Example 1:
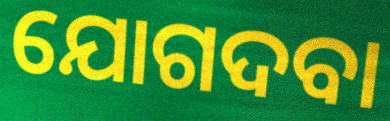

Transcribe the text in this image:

ଯୋଗଦବା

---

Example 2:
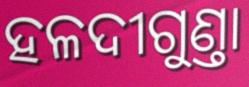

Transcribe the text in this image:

ହଳଦୀଗୁଣ୍ତା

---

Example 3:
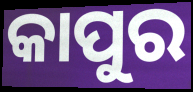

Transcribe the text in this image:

କାପୁର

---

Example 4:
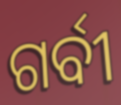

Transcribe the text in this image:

ଗର୍ବୀ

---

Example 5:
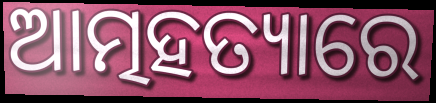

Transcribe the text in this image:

ଆତ୍ମହତ୍ୟାରେ